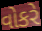
વોકરે